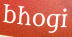
bhogi